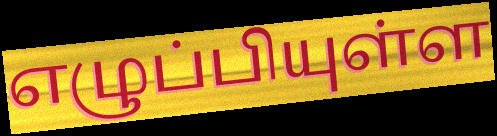
எழுப்பியுள்ள